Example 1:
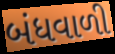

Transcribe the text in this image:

બંધવાળી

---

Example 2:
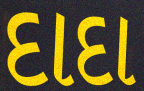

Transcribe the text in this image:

દાદા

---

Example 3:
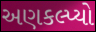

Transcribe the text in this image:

અણકલ્પ્યો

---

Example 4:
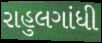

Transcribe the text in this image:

રાહુલગાંધી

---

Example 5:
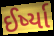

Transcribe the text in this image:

ઈર્ષ્યા